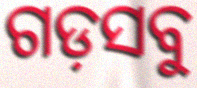
ଗଡ଼ସବୁ